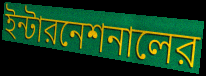
ইন্টারনেশনালের